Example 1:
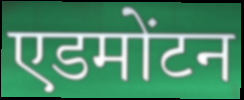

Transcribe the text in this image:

एडमोंटन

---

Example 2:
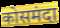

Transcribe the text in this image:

कोसमंदा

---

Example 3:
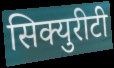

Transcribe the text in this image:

सिक्युरीटी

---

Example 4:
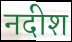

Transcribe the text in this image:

नदीश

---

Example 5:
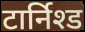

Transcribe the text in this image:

टार्निश्ड